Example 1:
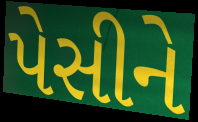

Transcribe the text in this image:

પેસીને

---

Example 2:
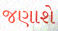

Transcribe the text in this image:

જણાશે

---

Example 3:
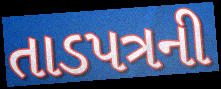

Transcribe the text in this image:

તાડપત્રની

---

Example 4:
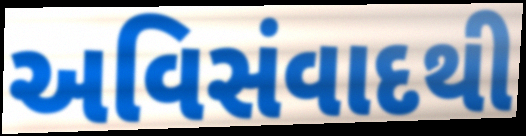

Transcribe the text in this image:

અવિસંવાદથી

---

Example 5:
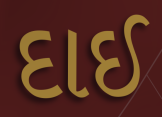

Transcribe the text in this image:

દાઈ